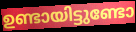
ഉണ്ടായിട്ടുണ്ടോ